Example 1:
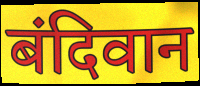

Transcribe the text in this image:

बंदिवान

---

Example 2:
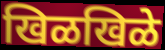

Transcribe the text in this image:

खिळखिळे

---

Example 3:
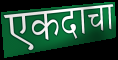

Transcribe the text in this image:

एकदाचा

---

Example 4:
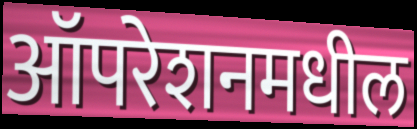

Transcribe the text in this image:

ऑपरेशनमधील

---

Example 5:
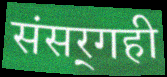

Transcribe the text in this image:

संसर्गही